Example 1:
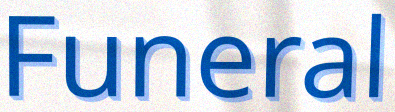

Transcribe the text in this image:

Funeral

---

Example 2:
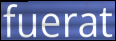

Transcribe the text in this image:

fuerat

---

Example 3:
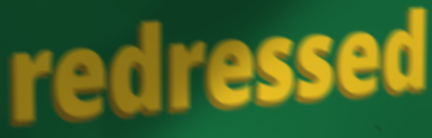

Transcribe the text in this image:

redressed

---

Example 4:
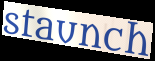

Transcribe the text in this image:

staunch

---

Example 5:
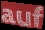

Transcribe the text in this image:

auf